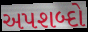
અપશબ્દો